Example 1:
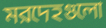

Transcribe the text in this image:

মরদেহগুলো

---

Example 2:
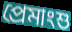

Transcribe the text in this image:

প্রেমাংশু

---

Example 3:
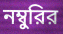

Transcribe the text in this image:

নম্বুরির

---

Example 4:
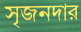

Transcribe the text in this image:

সৃজনদার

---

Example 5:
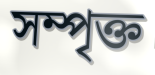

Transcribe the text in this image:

সম্পৃক্ত